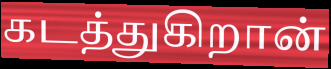
கடத்துகிறான்